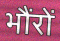
भौंरों